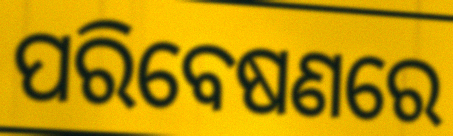
ପରିବେଷଣରେ